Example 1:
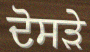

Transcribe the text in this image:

ਦੋਸੜੇ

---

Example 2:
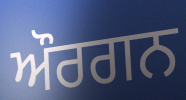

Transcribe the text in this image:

ਔਰਗਨ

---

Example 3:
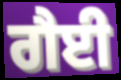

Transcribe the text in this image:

ਗੈਈ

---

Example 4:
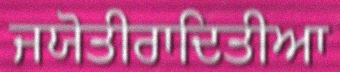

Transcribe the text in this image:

ਜਯੋਤੀਰਾਦਿਤੀਆ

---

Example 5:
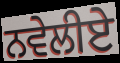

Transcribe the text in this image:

ਨਵੇਲੀਏ